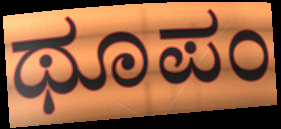
ಥೂಪಂ